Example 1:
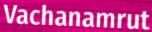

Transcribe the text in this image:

Vachanamrut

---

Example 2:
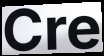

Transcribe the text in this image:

Cre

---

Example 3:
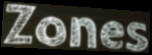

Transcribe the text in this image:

Zones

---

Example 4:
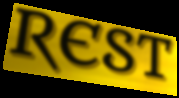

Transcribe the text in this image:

REST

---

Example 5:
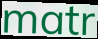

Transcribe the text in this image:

matr